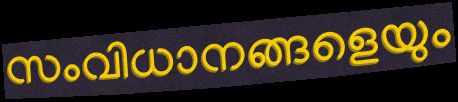
സംവിധാനങ്ങളെയും